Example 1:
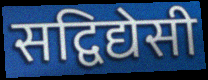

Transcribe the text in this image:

सद्विद्येसी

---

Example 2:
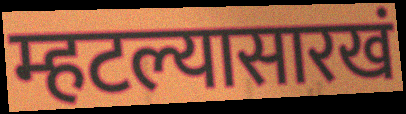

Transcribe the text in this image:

म्हटल्यासारखं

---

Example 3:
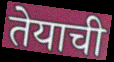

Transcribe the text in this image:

तेयाची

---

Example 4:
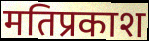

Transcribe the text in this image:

मतिप्रकाश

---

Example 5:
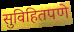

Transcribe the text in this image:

सुविहितपणे